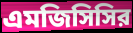
এমজিসিসির